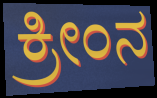
ಕ್ರೀಂನ